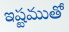
ఇష్టముతో